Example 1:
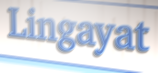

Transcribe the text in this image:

Lingayat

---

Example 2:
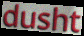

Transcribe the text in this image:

dusht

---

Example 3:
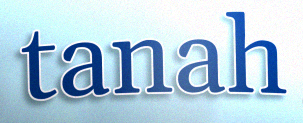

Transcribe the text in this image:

tanah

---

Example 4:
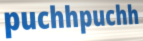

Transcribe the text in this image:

puchhpuchh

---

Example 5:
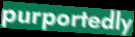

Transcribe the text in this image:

purportedly